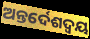
ଅନ୍ତର୍ଦେଶଦ୍ଵୟ